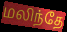
மலிந்தே